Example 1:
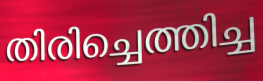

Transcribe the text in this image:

തിരിച്ചെത്തിച്ച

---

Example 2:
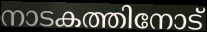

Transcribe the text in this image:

നാടകത്തിനോട്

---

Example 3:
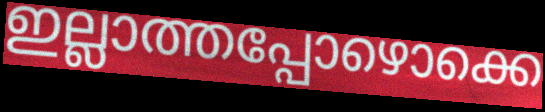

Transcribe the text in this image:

ഇല്ലാത്തപ്പോഴൊക്കെ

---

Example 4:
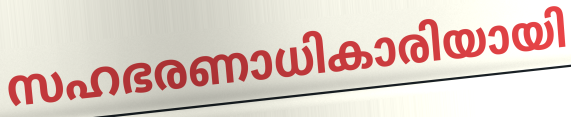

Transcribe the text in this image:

സഹഭരണാധികാരിയായി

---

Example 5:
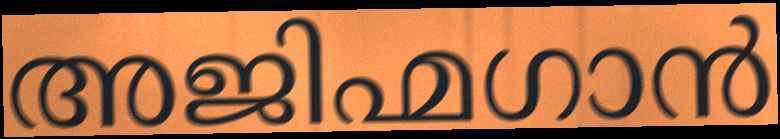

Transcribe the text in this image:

അജിഹ്മഗാൻ